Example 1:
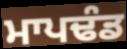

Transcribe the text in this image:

ਮਾਪਢੰਡ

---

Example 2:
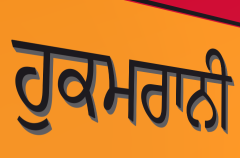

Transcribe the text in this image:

ਹੁਕਮਰਾਨੀ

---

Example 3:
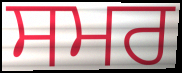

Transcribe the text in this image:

ਸਮਰ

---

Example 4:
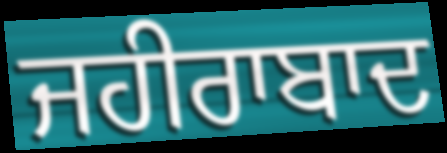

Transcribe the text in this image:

ਜਹੀਰਾਬਾਦ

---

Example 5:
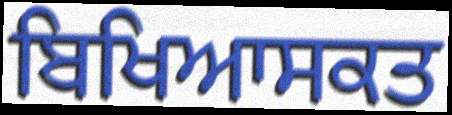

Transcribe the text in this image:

ਬਿਖਿਆਸਕਤ